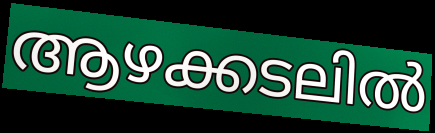
ആഴക്കടലിൽ